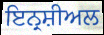
ਇਨ੍ਰਸ਼ੀਅਲ